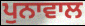
ਪੁਨਾਵਾਲ